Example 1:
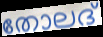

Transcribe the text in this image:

തോലദ്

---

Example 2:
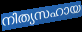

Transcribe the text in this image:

നിത്യസഹായ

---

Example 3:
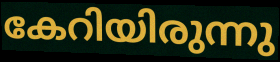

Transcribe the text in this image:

കേറിയിരുന്നു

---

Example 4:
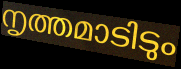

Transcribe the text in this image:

നൃത്തമാടിടും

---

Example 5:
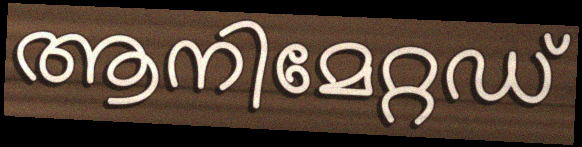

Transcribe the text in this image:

ആനിമേറ്റഡ്